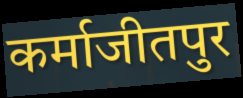
कर्माजीतपुर